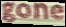
gone